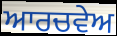
ਆਰਚਵੇਅ